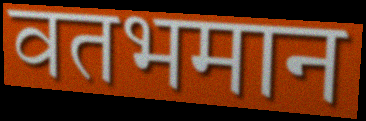
वतभमान